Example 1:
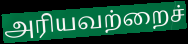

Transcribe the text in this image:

அரியவற்றைச்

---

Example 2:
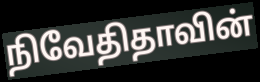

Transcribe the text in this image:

நிவேதிதாவின்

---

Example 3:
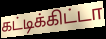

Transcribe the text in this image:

கட்டிக்கிட்டா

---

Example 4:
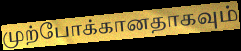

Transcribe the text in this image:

முற்போக்கானதாகவும்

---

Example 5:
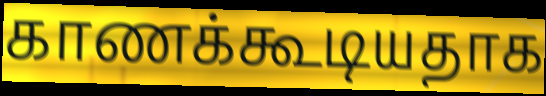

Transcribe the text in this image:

காணக்கூடியதாக